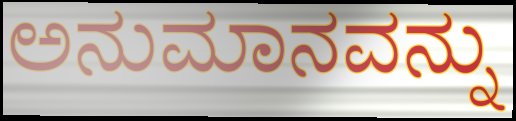
ಅನುಮಾನವನ್ನು